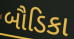
બૌડિકા